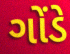
ગોંડે